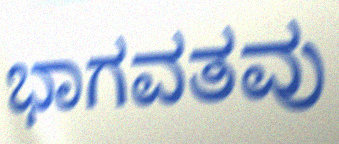
ಭಾಗವತವು